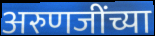
अरुणजींच्या